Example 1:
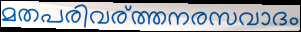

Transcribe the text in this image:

മതപരിവര്ത്തനരസവാദം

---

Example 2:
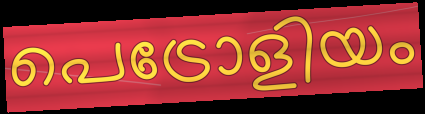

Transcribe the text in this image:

പെട്രോളിയം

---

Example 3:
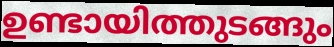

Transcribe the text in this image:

ഉണ്ടായിത്തുടങ്ങും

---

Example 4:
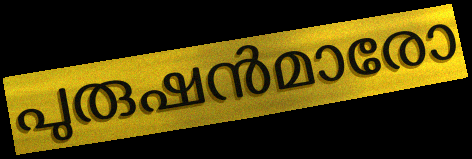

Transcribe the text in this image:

പുരുഷൻമാരോ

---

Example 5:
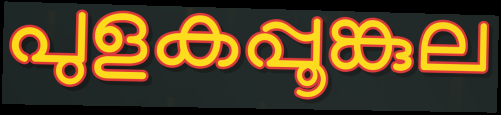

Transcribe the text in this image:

പുളകപ്പൂങ്കുല